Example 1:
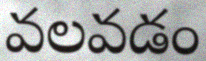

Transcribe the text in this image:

వలవడం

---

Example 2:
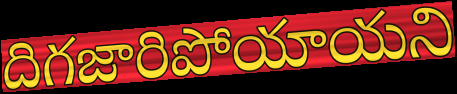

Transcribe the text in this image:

దిగజారిపోయాయని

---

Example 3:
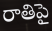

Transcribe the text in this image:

రాతిపై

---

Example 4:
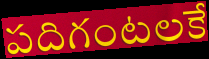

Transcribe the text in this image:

పదిగంటలకే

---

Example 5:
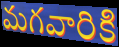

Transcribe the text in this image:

మగవారికి